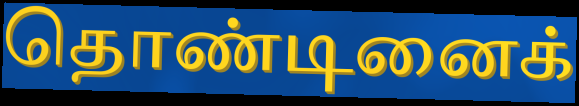
தொண்டினைக்